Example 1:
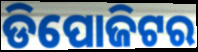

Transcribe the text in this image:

ଡିପୋଜିଟର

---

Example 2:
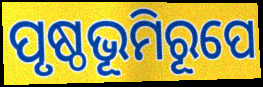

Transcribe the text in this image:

ପୃଷ୍ଠଭୂମିରୂପେ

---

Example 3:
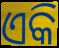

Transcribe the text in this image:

ଏକି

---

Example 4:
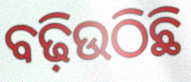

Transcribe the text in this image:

ବଢ଼ିଉଠିଛି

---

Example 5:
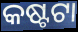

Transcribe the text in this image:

କଷ୍ଟଟା